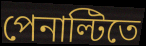
পেনাল্টিতে